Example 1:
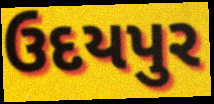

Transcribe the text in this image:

ઉદયપુર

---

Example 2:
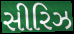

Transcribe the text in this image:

સીરિઝ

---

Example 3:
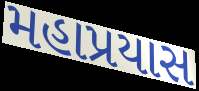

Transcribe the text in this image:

મહાપ્રયાસ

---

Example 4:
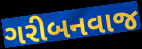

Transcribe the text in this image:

ગરીબનવાજ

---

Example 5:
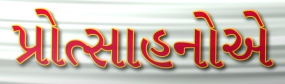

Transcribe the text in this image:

પ્રોત્સાહનોએ